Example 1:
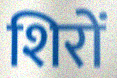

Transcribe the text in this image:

शिरों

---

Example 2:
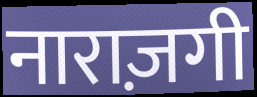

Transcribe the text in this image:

नाराज़गी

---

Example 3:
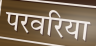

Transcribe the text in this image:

परवरिया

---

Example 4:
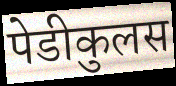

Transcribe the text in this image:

पेडीकुलस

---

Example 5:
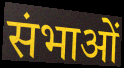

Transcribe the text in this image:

संभाओं